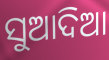
ସୁଆଦିଆ